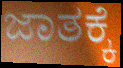
ಜಾತಕ್ಕೆ